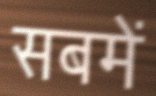
सबमें